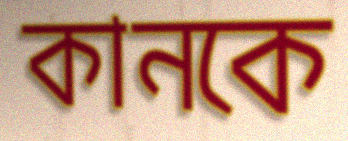
কানকে